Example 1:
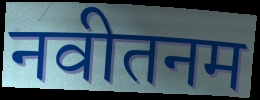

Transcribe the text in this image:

नवीतनम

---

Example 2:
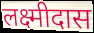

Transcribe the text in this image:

लक्ष्मीदास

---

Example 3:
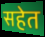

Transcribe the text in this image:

सहेत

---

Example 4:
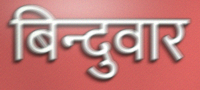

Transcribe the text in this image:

बिन्‍दुवार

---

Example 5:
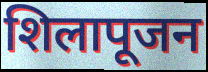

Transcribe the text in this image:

शिलापूजन